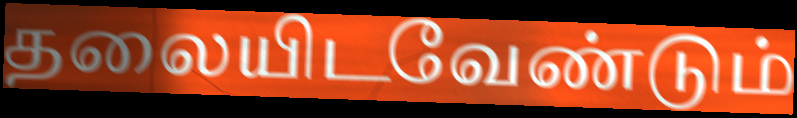
தலையிடவேண்டும்